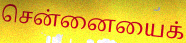
சென்னையைக்